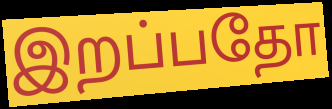
இறப்பதோ